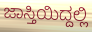
ಜಾಸ್ತಿಯಿದ್ದಲ್ಲಿ